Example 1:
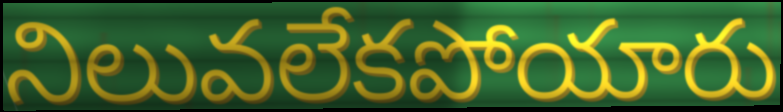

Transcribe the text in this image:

నిలువలేకపోయారు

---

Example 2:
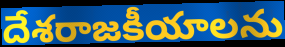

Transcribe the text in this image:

దేశరాజకీయాలను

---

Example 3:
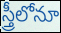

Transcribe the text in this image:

స్త్రీలోనూ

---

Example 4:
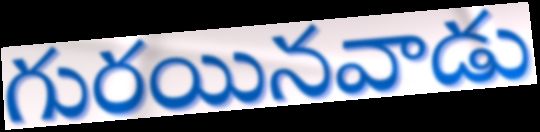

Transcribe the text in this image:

గురయినవాడు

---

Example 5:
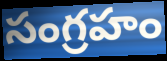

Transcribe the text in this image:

సంగ్రహం